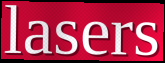
lasers